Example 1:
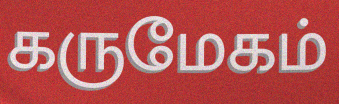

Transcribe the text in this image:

கருமேகம்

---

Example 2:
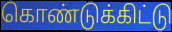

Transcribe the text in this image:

கொண்டுக்கிட்டு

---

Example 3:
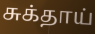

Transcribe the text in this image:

சுக்தாய்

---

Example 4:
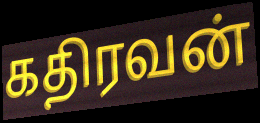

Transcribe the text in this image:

கதிரவன்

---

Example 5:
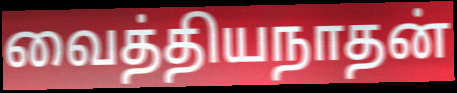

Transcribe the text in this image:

வைத்தியநாதன்